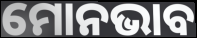
ମୋନଭାବ